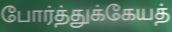
போர்த்துக்கேயத்